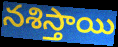
నశిస్తాయి